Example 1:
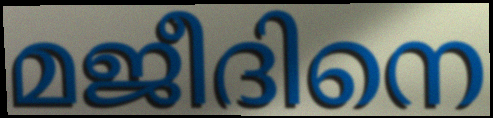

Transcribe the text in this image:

മജീദിനെ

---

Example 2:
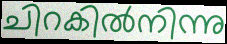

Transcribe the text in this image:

ചിറകിൽനിന്നു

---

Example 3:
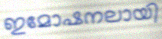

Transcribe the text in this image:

ഇമോഷനലായി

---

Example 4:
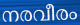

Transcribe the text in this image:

നരവീരം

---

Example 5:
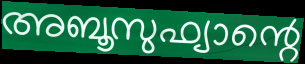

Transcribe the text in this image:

അബൂസുഫ്യാന്റെ